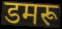
डमरू